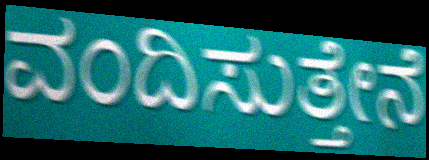
ವಂದಿಸುತ್ತೇನೆ